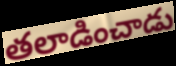
తలాడించాడు